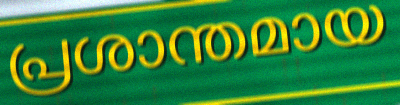
പ്രശാന്തമായ